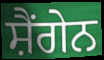
ਸ਼ੈਂਗੇਨ